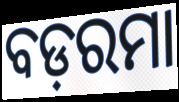
ବଡ଼ରମା